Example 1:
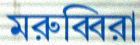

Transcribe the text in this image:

মরুব্বিরা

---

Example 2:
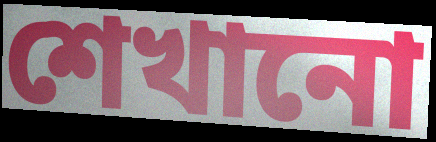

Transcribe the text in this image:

শেখানো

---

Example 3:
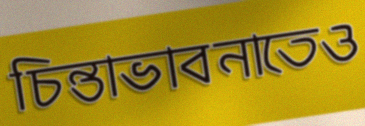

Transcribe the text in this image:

চিন্তাভাবনাতেও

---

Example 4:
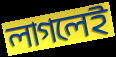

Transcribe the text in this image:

লাগলেই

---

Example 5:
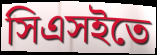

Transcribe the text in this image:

সিএসইতে